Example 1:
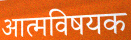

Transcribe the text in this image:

आत्मविषयक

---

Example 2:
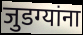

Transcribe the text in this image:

जुडग्यांना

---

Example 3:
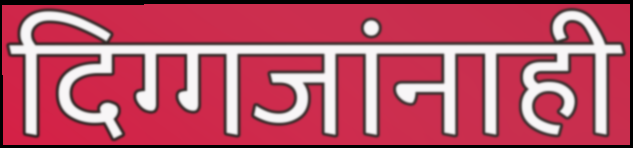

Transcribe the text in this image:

दिग्गजांनाही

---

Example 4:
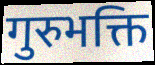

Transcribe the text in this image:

गुरुभक्ति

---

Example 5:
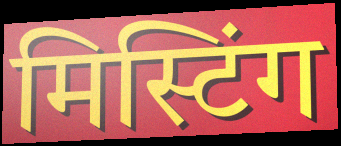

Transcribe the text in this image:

मिस्टिंग